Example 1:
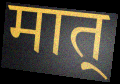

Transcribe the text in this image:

मात्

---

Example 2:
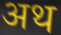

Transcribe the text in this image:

अथ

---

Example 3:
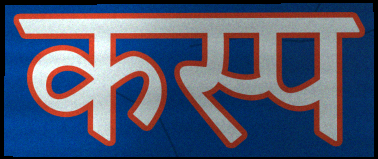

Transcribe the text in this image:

कस्प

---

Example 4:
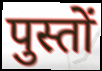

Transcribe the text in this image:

पुस्तों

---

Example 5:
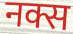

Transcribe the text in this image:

नक्स